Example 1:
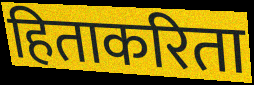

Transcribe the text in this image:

हिताकरिता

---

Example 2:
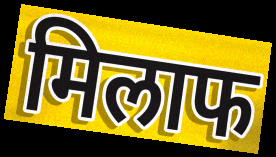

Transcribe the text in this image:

मिलाफ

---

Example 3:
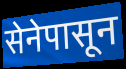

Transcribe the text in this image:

सेनेपासून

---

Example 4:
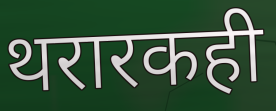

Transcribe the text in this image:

थरारकही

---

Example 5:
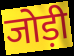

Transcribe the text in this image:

जोड़ी